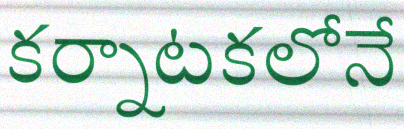
కర్నాటకలోనే